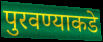
पुरवण्याकडे